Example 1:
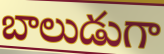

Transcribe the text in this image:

బాలుడుగా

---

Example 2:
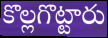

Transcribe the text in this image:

కొల్లగొట్టారు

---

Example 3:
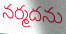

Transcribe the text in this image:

నర్మదను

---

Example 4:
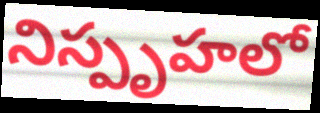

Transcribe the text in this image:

నిస్పృహలో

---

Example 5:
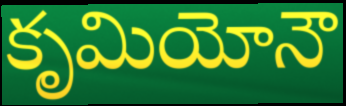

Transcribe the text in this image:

కృమియోనౌ